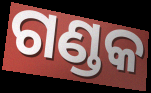
ଗଣ୍ଡକ